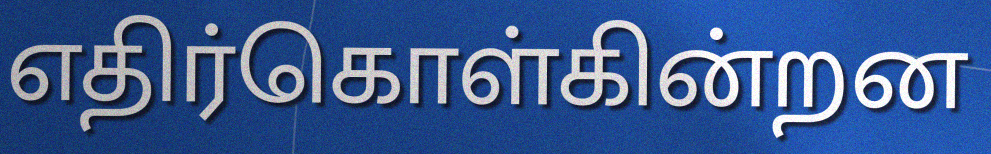
எதிர்கொள்கின்றன